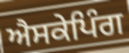
ਐਸਕੇਪਿੰਗ